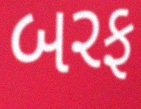
બરફ